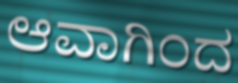
ಆವಾಗಿಂದ